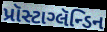
પ્રૉસ્ટાગ્લૅન્ડિન